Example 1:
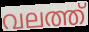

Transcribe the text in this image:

വലത്ത്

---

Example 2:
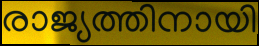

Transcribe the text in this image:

രാജ്യത്തിനായി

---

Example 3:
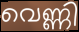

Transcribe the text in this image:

വെണ്ണി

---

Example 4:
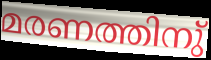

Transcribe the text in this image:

മരണത്തിനു്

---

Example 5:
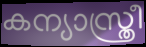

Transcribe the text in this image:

കന്യാസ്ത്രീ